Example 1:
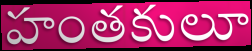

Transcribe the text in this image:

హంతకులూ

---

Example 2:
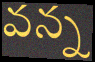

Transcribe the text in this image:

వన్న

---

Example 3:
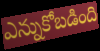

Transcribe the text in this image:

ఎన్నుకోబడింది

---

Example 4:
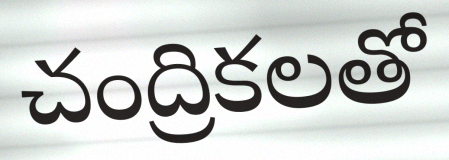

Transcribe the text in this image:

చంద్రికలతో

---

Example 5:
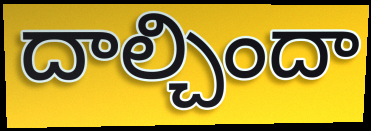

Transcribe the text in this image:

దాల్చిందా